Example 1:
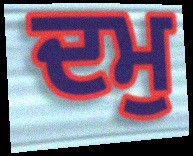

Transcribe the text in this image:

ਦਮੁ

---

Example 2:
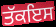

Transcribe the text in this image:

ਤੱਕਇਸ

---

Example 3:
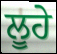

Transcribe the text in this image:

ਲੂਹੇ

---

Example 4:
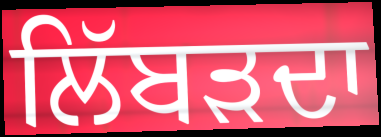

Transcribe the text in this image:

ਲਿੱਬੜਦਾ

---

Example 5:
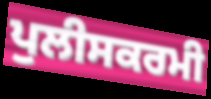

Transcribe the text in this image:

ਪੁਲੀਸਕਰਮੀ